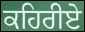
ਕਹਿਰੀਏ